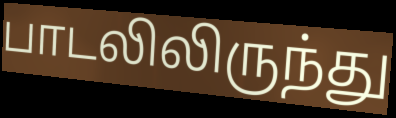
பாடலிலிருந்து